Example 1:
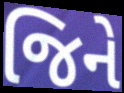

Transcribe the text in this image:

જિને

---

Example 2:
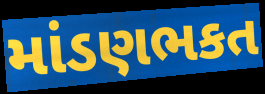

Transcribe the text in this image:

માંડણભકત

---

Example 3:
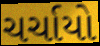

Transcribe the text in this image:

ચર્ચાયો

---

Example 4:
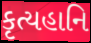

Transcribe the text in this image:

કૃત્યહાનિ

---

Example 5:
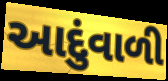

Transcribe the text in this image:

આદુંવાળી